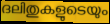
ദലിതുകളുടെയും